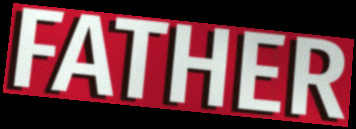
FATHER